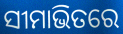
ସୀମାଭିତରେ